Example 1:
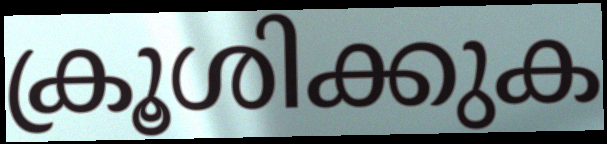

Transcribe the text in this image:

ക്രൂശിക്കുക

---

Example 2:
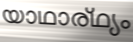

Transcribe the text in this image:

യാഥാര്ഥ്യം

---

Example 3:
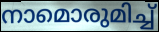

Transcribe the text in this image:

നാമൊരുമിച്ച്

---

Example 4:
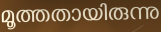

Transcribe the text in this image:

മൂത്തതായിരുന്നു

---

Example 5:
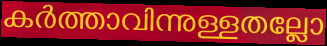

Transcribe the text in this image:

കർത്താവിന്നുള്ളതല്ലോ